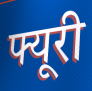
फ्यूरी